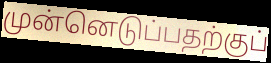
முன்னெடுப்பதற்குப்